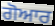
ਗੋਆਰ